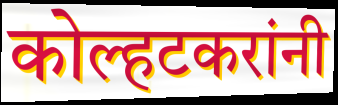
कोल्हटकरांनी